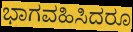
ಭಾಗವಹಿಸಿದರೂ